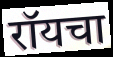
रॉयचा